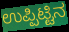
ಉಪ್ಪಿಟ್ಟಿನ